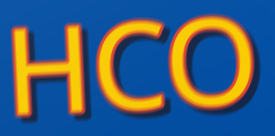
HCO